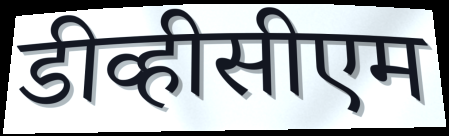
डीव्हीसीएम